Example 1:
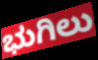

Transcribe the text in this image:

ಭುಗಿಲು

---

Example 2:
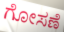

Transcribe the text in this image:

ಗೋಸಣೆ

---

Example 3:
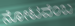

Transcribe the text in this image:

ನೋಟವೆಂಬ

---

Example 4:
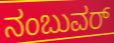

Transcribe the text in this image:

ನಂಬುವರ್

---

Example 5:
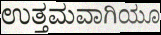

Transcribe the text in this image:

ಉತ್ತಮವಾಗಿಯೂ